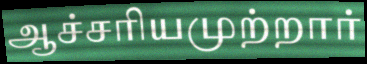
ஆச்சரியமுற்றார்